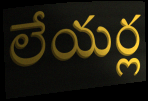
లేయర్ల